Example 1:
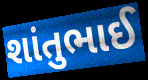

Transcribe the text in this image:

શાંતુભાઈ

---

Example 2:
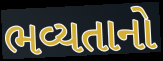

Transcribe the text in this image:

ભવ્યતાનો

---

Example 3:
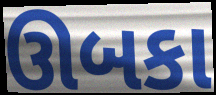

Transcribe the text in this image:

ઊબકા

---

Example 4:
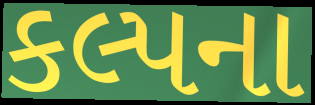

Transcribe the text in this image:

કલ્પના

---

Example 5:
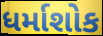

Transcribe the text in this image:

ધર્માશોક